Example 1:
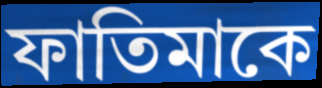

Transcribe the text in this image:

ফাতিমাকে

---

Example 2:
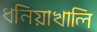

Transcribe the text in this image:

ধনিয়াখালি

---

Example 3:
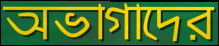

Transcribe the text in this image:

অভাগাদের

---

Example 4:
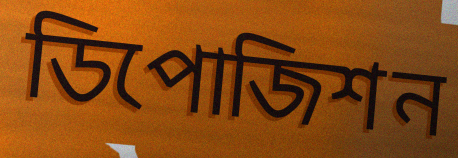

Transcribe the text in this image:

ডিপোজিশন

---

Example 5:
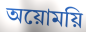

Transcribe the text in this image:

অয়োময়ি